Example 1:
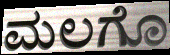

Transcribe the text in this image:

ಮಲಗೊ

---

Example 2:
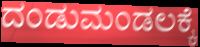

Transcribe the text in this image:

ದಂಡುಮಂಡಲಕ್ಕೆ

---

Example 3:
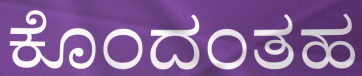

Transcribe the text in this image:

ಕೊಂದಂತಹ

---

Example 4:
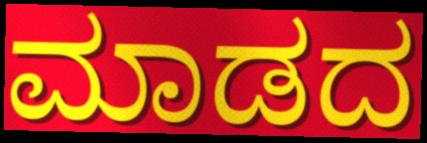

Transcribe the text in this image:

ಮಾಡದ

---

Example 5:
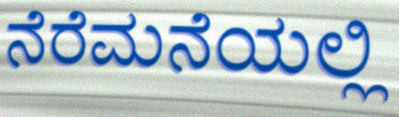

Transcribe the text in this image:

ನೆರೆಮನೆಯಲ್ಲಿ